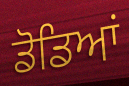
ਡੋਡਿਆਂ